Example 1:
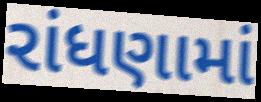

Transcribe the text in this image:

રાંધણામાં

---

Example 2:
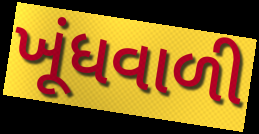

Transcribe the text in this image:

ખૂંધવાળી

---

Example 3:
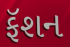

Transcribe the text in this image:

ફૅશન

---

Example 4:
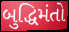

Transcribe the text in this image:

બુદ્ધિમંતો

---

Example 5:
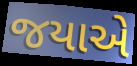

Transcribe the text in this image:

જયાએ